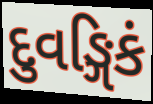
દુવઙ્ગિકં